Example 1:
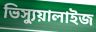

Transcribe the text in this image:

ভিস্যুয়ালাইজ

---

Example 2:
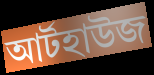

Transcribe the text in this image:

আর্টহাউজ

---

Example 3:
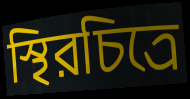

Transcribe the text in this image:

স্থিরচিত্রে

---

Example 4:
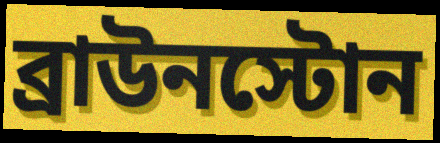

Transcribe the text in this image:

ব্রাউনস্টোন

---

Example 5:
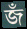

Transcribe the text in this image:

জঁ